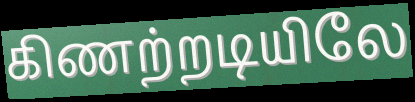
கிணற்றடியிலே